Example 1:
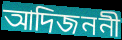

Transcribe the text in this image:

আদিজননী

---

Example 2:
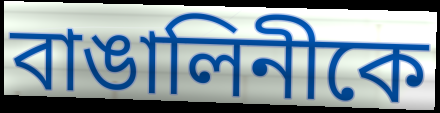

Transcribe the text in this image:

বাঙালিনীকে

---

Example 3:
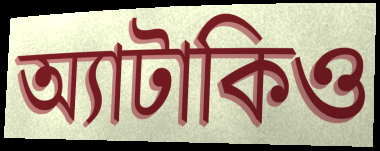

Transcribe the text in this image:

অ্যাটাকিও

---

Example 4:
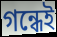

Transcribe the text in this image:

গন্ধেই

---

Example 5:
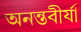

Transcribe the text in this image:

অনন্তবীর্যা